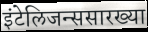
इंटेलिजन्ससारख्या